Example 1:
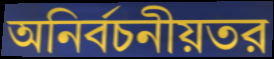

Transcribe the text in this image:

অনির্বচনীয়তর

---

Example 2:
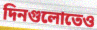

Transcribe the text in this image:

দিনগুলোতেও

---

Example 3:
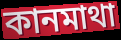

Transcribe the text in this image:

কানমাথা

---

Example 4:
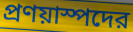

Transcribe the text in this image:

প্রণয়াস্পদের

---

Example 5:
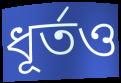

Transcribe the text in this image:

ধূর্তও